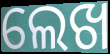
ଲେଖ